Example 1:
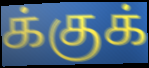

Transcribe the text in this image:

க்குக்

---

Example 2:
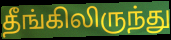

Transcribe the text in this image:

தீங்கிலிருந்து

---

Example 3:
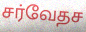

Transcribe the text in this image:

சர்வேதச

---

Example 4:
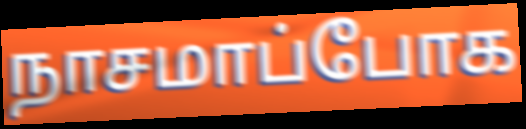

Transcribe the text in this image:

நாசமாப்போக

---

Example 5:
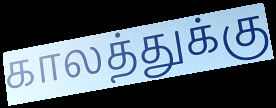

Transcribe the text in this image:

காலத்துக்கு